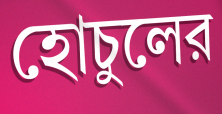
হোচুলের